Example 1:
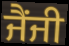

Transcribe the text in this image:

ਜੈਂਜੀ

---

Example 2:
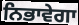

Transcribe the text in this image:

ਨਿਭਾਵੇਗਾ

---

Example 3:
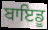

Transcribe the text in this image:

ਬਾਇਡੂ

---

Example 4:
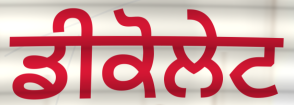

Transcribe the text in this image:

ਡੀਕੋਲੇਟ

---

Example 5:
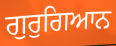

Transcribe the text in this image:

ਗੁਰੁਗਿਆਨ